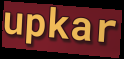
upkar